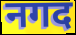
नगद